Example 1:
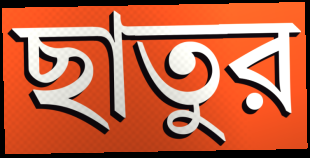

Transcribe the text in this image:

ছাতুর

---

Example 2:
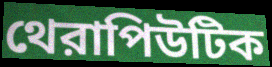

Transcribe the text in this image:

থেরাপিউটিক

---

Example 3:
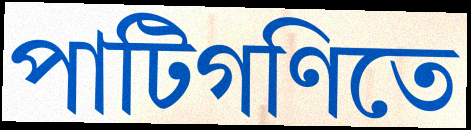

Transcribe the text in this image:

পাটিগণিতে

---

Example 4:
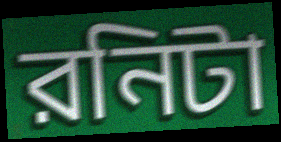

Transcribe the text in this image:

রনিটা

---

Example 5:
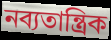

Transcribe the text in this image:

নব্যতান্ত্রিক